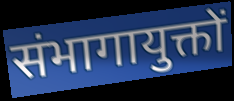
संभागायुक्तों